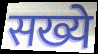
सख्ये